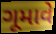
ગૂમાવે